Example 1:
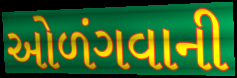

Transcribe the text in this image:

ઓળંગવાની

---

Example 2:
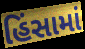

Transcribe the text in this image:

હિંસામાં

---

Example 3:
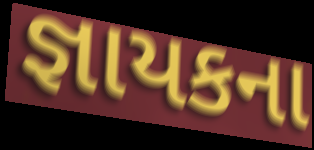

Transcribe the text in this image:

જ્ઞાયકના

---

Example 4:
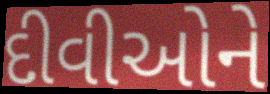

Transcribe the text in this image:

દીવીઓને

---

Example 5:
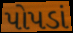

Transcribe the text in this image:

પોપડાં